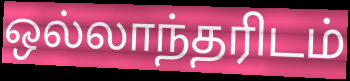
ஒல்லாந்தரிடம்